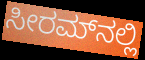
ಸೀರಮ್‌ನಲ್ಲಿ